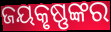
ଜୟକୃଷ୍ଣଙ୍କର